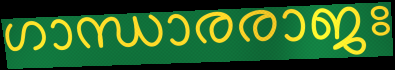
ഗാന്ധാരരാജഃ